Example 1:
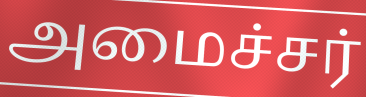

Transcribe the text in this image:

அமைச்சர்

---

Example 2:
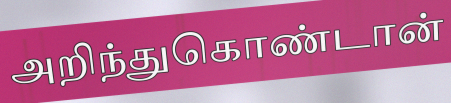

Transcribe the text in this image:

அறிந்துகொண்டான்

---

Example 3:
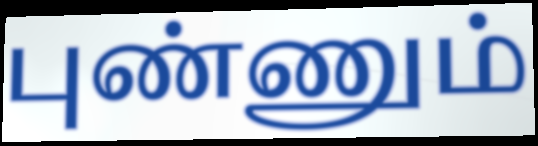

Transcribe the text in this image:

புண்ணும்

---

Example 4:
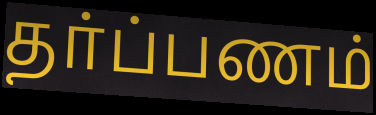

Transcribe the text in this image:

தர்ப்பணம்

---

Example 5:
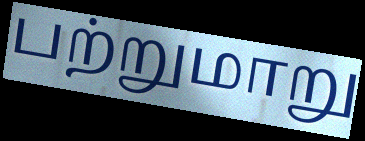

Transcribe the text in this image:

பற்றுமாறு